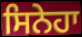
ਸਿਨੇਹਾ